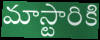
మాస్టారికి